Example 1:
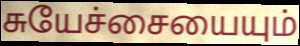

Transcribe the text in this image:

சுயேச்சையையும்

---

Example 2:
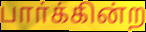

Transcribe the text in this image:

பார்க்கின்ற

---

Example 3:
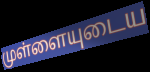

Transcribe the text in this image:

முள்ளையுடைய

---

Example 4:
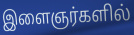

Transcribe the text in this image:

இளைஞர்களில்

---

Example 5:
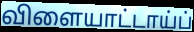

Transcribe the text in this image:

விளையாட்டாய்ப்